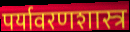
पर्यावरणशास्त्र